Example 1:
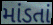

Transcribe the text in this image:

માંડતાં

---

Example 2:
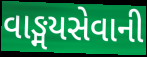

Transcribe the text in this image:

વાઙ્મયસેવાની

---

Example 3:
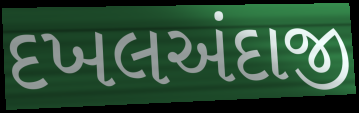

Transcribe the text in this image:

દખલઅંદાજી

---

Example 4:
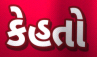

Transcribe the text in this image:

કેહતો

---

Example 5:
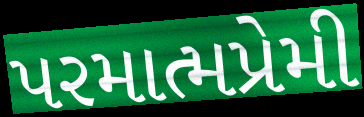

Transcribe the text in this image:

પરમાત્મપ્રેમી